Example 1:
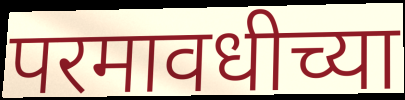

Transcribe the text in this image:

परमावधीच्या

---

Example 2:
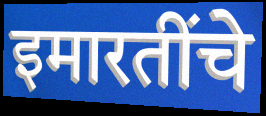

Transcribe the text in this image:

इमारतींचे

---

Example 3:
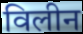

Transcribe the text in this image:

विलीन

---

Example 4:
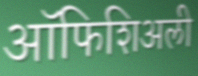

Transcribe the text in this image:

ऑफिशिअली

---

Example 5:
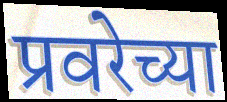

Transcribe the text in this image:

प्रवरेच्या